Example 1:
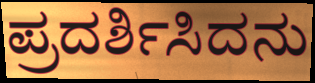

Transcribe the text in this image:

ಪ್ರದರ್ಶಿಸಿದನು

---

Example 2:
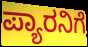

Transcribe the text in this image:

ಪ್ಯಾರನಿಗೆ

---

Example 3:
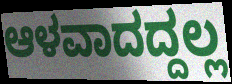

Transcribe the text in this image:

ಆಳವಾದದ್ದಲ್ಲ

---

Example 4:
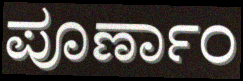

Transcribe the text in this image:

ಪೂರ್ಣಾಂ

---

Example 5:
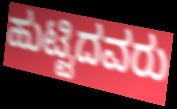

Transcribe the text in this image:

ಹುಟ್ಟಿದವರು